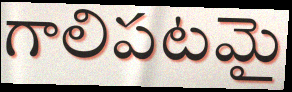
గాలిపటమై